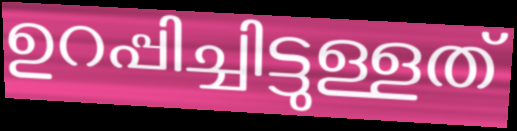
ഉറപ്പിച്ചിട്ടുള്ളത്